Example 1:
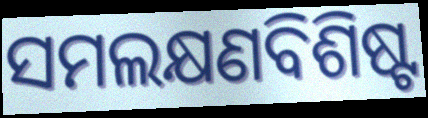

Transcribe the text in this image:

ସମଲକ୍ଷଣବିଶିଷ୍ଟ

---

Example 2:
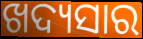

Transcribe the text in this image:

ଖଦ୍ୟସାର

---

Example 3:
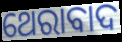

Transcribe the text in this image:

ଥେରାବାଦ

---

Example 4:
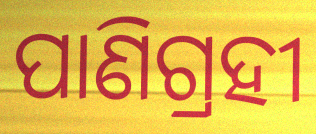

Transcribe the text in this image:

ପାଣିଗ୍ରହୀ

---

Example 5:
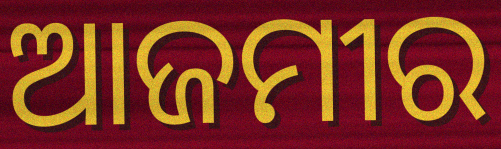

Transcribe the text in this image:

ଆଜମୀର